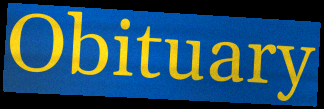
Obituary